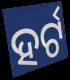
ହର୍ଟ